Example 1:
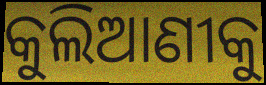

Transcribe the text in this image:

କୁଲିଆଣୀକୁ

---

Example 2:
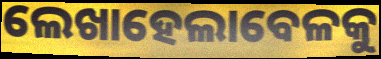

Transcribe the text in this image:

ଲେଖାହେଲାବେଳକୁ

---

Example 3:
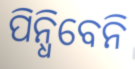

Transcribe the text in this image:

ପିନ୍ଧିବେନି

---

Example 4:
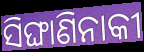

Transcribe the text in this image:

ସିଙ୍ଘାଣିନାକୀ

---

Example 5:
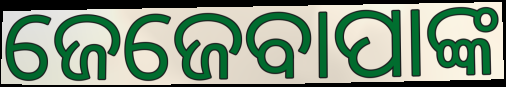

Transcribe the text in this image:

ଜେଜେବାପାଙ୍କ